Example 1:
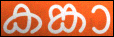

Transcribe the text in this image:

കങ്കാ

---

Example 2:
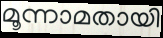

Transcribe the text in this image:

മൂന്നാമതായി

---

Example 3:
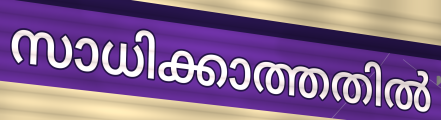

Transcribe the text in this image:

സാധിക്കാത്തതിൽ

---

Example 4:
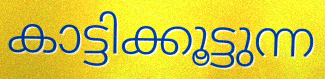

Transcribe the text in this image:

കാട്ടിക്കൂട്ടുന്ന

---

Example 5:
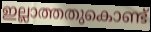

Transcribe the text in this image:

ഇല്ലാത്തതുകൊണ്ട്